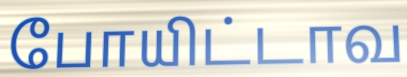
போயிட்டாவ